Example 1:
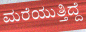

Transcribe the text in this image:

ಮರೆಯುತ್ತಿದ್ದೆ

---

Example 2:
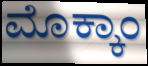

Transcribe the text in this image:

ಮೊಕ್ಕಾಂ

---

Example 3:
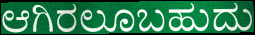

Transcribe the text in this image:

ಆಗಿರಲೂಬಹುದು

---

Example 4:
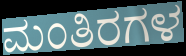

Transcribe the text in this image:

ಮಂತಿರಗಳ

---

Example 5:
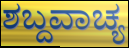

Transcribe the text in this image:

ಶಬ್ದವಾಚ್ಯ